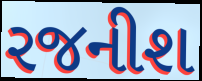
રજનીશ